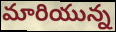
మారియున్న